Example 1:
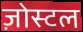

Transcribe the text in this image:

ज़ोस्टल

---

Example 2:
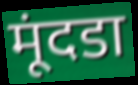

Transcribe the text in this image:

मूंदडा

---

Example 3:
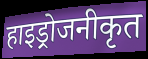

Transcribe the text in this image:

हाइड्रोजनीकृत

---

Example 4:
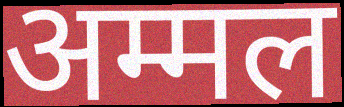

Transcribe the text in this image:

अम्मल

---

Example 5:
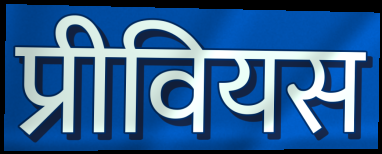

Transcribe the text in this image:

प्रीवियस